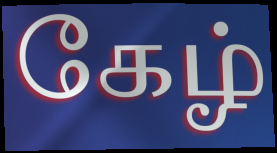
கேழ்